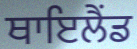
ਥਾਇਲੈਂਡ